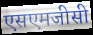
एसएमजीसी